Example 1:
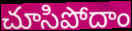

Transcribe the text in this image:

చూసిపోదాం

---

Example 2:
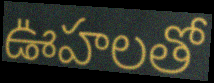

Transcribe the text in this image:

ఊహలతో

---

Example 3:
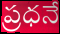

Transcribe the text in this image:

ప్రధనే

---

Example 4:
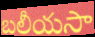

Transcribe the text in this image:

బలీయసా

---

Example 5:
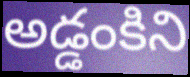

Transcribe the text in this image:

అడ్డంకిని